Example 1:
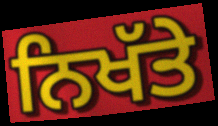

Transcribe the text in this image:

ਨਿਖੱਤੇ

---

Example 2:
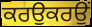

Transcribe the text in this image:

ਕਰਉਕਰਉਂ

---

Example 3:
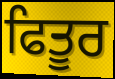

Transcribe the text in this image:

ਫਿਤੂਰ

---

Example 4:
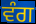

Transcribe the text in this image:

ਵੰਗ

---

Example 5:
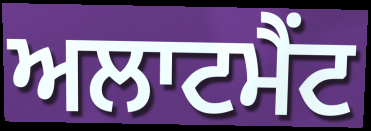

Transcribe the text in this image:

ਅਲਾਟਮੈਂਟ